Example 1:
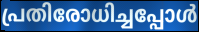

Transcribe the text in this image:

പ്രതിരോധിച്ചപ്പോൾ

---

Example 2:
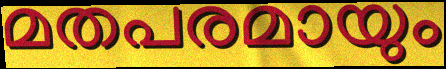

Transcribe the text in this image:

മതപരമായും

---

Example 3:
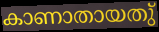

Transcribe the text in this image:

കാണാതായതു്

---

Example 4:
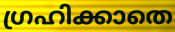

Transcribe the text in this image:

ഗ്രഹിക്കാതെ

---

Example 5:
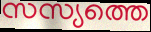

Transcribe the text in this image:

സസ്യത്തെ